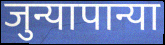
जुन्यापान्या